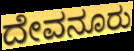
ದೇವನೂರು